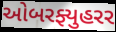
ઓબરફ્યુહરર